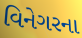
વિનેગરના